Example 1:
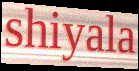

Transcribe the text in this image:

shiyala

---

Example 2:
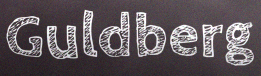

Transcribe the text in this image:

Guldberg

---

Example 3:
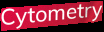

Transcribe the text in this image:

Cytometry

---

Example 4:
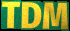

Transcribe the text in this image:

TDM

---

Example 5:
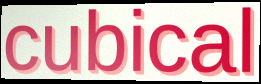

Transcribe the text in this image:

cubical